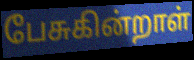
பேசுகின்றாள்